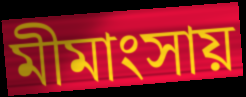
মীমাংসায়